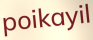
poikayil